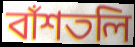
বাঁশতলি